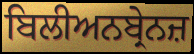
ਬਿਲੀਅਨਬ੍ਰੇਨਜ਼